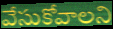
వేసుకోవాలని